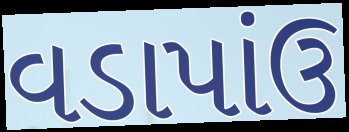
વડાપાંઉ